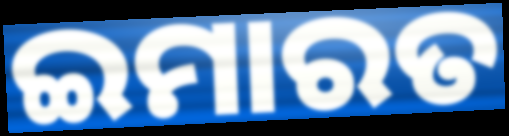
ଇମାରତ